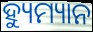
ହ୍ୟୁମ୍ୟାନ